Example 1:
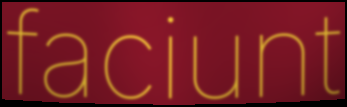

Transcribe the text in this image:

faciunt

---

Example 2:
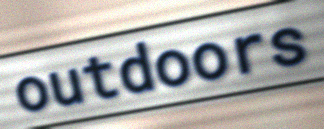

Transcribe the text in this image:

outdoors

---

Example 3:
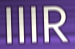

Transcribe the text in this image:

IIIR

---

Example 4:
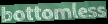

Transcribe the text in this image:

bottomless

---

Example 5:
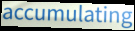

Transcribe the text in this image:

accumulating